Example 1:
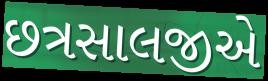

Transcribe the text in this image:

છત્રસાલજીએ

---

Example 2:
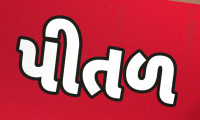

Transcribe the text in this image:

પીતળ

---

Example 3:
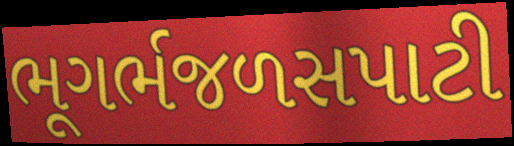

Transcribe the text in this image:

ભૂગર્ભજળસપાટી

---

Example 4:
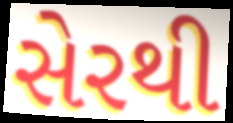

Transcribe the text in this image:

સેરથી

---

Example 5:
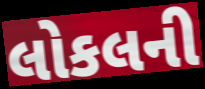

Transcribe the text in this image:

લોકલની